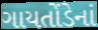
ગાયતોંડેનાં